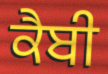
ਕੈਬੀ